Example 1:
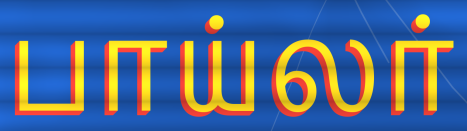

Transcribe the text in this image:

பாய்லர்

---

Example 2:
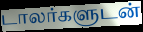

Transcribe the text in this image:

டாலர்களுடன்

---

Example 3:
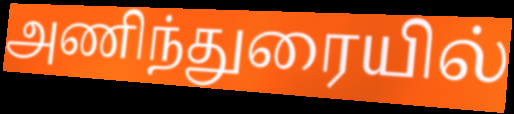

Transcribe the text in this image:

அணிந்துரையில்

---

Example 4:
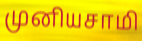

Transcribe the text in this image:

முனியசாமி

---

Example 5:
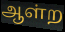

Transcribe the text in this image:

ஆள்ற